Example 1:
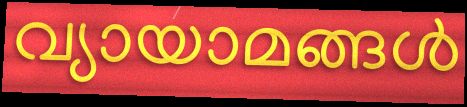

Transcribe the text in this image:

വ്യായാമങ്ങൾ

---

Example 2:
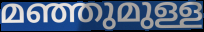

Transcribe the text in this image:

മഞ്ഞുമുള്ള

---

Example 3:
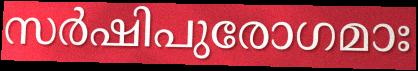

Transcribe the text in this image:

സർഷിപുരോഗമാഃ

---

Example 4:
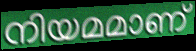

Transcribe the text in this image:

നിയമമാണ്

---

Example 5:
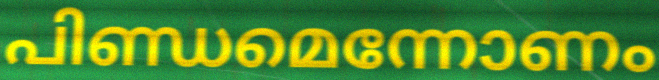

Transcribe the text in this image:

പിണ്ഡമെന്നോണം